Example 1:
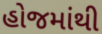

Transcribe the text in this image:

હોજમાંથી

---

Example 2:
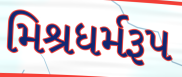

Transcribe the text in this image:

મિશ્રધર્મરૂપ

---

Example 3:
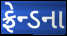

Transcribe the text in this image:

ફ્રેન્ડના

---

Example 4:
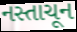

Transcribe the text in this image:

નસ્તાચૂન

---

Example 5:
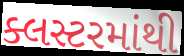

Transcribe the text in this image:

ક્લસ્ટરમાંથી